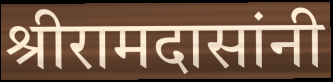
श्रीरामदासांनी